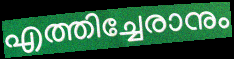
എത്തിച്ചേരാനും